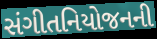
સંગીતનિયોજનની